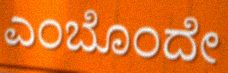
ಎಂಬೊಂದೇ